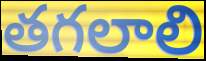
తగలాలి